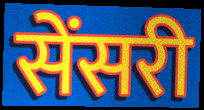
सेंसरी